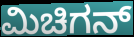
ಮಿಚಿಗನ್